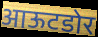
आऊटडोर